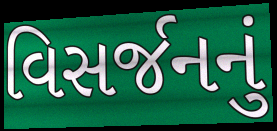
વિસર્જનનું